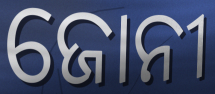
ଜୋନୀ